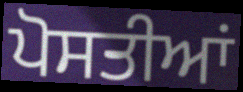
ਪੋਸਤੀਆਂ